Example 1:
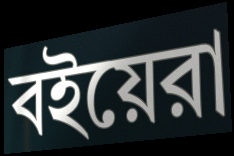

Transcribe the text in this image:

বইয়েরা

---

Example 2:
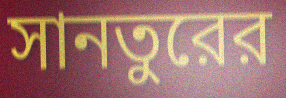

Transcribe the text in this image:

সানতুরের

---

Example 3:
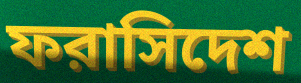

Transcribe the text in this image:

ফরাসিদেশ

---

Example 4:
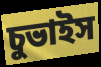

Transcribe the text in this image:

চুভাইস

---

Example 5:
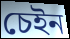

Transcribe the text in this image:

চেইন